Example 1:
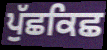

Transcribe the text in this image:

ਪੁੱਛਕਿਛ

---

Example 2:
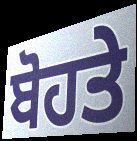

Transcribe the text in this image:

ਬੋਹਤੇ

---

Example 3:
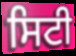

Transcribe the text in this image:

ਸਿਟੀ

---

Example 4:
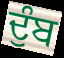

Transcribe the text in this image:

ਦੁੰਬ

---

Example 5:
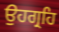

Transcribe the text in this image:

ਉਹਗ੍ਰਹਿ